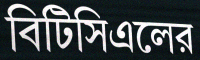
বিটিসিএলের